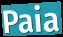
Paia